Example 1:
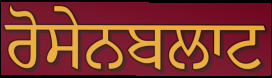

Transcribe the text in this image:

ਰੋਸੇਨਬਲਾਟ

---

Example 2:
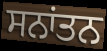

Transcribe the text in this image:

ਸਨਾਂਤਨ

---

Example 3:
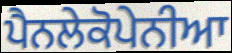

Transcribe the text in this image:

ਪੈਨਲੇਕੋਪੇਨੀਆ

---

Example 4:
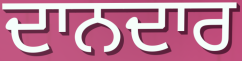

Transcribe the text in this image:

ਦਾਨਦਾਰ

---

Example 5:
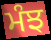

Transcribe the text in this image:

ਮੰਝ